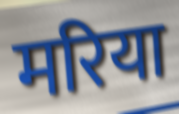
मरिया